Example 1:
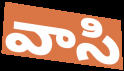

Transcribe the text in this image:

వాసి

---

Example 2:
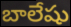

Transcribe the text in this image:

బాలేషు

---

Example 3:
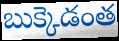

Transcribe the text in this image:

బుక్కెడంత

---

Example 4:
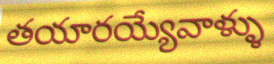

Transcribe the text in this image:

తయారయ్యేవాళ్ళు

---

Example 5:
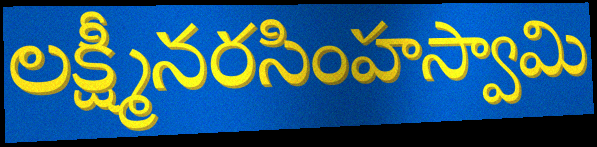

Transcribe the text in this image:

లక్ష్మీనరసింహస్వామి